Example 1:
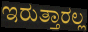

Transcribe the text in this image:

ಇರುತ್ತಾರಲ್ಲ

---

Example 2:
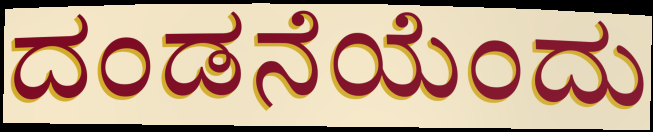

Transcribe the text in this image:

ದಂಡನೆಯೆಂದು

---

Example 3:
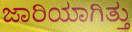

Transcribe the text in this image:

ಜಾರಿಯಾಗಿತ್ತು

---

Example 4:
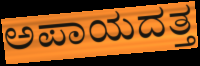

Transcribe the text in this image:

ಅಪಾಯದತ್ತ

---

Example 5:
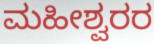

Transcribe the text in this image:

ಮಹೀಶ್ವರರ